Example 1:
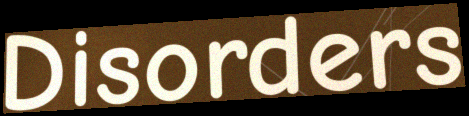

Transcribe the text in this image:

Disorders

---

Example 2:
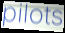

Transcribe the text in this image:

pilots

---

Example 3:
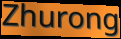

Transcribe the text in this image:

Zhurong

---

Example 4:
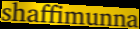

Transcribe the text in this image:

shaffimunna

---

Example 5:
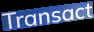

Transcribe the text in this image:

Transact